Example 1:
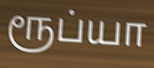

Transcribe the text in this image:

ரூப்யா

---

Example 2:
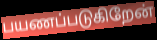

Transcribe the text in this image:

பயணப்படுகிறேன்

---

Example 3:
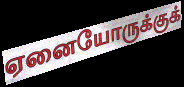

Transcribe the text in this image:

ஏனையோருக்குக்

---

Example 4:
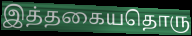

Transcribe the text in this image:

இத்தகையதொரு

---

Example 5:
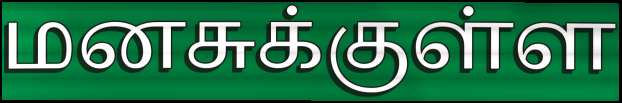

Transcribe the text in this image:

மனசுக்குள்ள